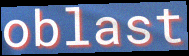
oblast